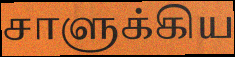
சாளுக்கிய